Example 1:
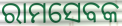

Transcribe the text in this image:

ରାମସେବକ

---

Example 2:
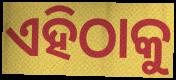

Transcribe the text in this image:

ଏହିଠାକୁ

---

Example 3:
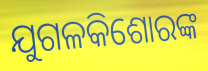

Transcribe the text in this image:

ଯୁଗଳକିଶୋରଙ୍କ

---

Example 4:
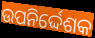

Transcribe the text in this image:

ଉପନିର୍ଦ୍ଦେଶକ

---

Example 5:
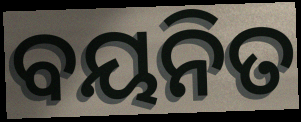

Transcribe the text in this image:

ବୟନିତ